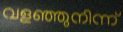
വളഞ്ഞുനിന്ന്